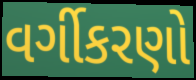
વર્ગીકરણો